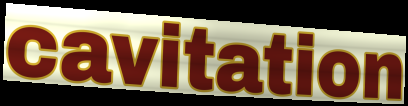
cavitation